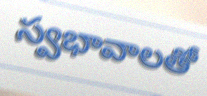
స్వభావాలతో